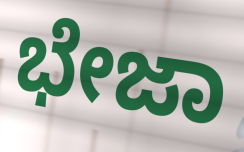
ಭೇಜಾ